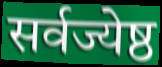
सर्वज्येष्ठ